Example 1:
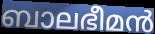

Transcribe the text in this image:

ബാലഭീമൻ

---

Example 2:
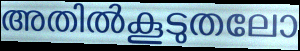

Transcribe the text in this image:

അതിൽകൂടുതലോ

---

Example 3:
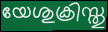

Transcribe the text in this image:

യേശുക്രിസ്തു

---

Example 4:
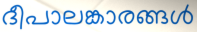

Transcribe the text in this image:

ദീപാലങ്കാരങ്ങൾ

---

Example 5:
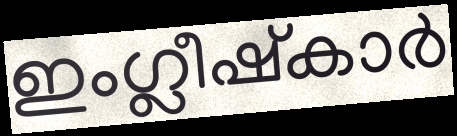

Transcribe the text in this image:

ഇംഗ്ലീഷ്കാർ